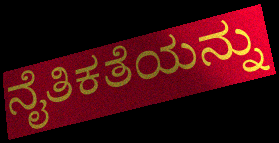
ನೈತಿಕತೆಯನ್ನು